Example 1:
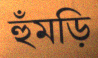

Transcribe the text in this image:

হুঁমড়ি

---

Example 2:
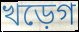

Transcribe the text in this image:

খড়েগ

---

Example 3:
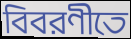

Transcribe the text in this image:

বিবরণীতে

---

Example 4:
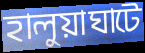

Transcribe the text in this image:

হালুয়াঘাটে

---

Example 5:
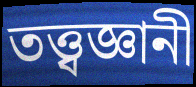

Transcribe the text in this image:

তত্ত্বজ্ঞানী